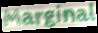
Marginal